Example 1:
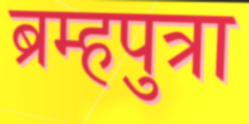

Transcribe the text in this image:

ब्रम्हपुत्रा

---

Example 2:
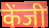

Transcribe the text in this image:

केंजी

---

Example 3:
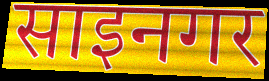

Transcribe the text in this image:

साइनगर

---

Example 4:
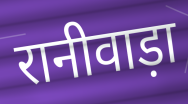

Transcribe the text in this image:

रानीवाड़ा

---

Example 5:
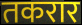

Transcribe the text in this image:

तकरार